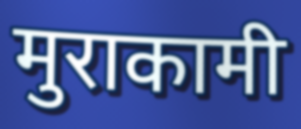
मुराकामी